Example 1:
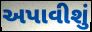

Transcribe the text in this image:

અપાવીશું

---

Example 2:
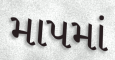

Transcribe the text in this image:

માપમાં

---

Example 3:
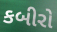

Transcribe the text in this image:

કબીરો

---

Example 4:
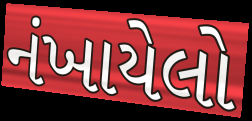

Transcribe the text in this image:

નંખાયેલો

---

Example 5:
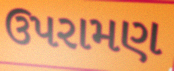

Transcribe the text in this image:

ઉપરામણ